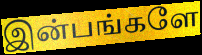
இன்பங்களே